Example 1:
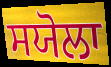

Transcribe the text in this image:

ਸਯੋਲਾ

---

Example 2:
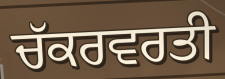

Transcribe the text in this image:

ਚੱਕਰਵਰਤੀ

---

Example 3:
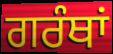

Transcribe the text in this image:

ਗਰੰਥਾਂ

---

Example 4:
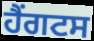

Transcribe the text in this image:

ਹੈਂਗਟਸ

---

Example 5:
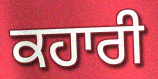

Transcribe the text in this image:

ਕਹਾਰੀ